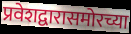
प्रवेशद्वारासमोरच्या